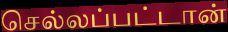
செல்லப்பட்டான்